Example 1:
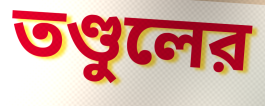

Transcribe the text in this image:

তণ্ডুলের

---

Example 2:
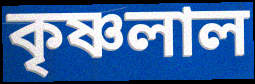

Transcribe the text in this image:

কৃষ্ণলাল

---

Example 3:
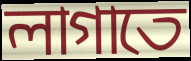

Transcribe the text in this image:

লাগাতে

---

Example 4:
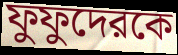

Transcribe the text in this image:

ফুফুদেরকে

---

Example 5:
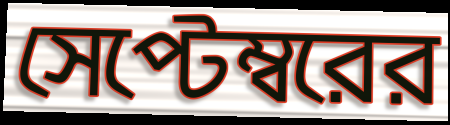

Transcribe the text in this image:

সেপ্টেম্বরের